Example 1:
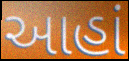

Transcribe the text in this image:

આહાં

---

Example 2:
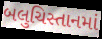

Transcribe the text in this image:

બલુચિસ્તાનમાં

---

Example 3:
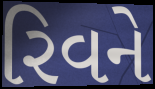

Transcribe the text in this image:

રિવને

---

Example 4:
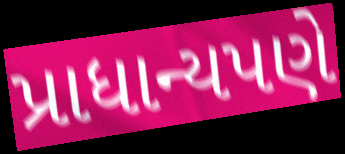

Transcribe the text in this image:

પ્રાધાન્યપણે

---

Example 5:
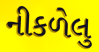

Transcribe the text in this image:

નીકળેલુ